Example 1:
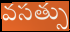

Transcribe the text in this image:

వసత్సు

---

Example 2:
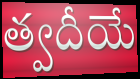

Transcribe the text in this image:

త్వదీయే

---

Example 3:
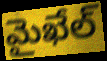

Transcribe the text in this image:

మైఖేల్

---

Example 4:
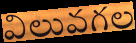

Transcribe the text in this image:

విలువగల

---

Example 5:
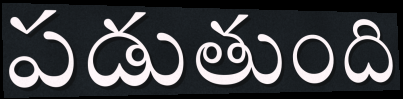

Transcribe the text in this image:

పడుతుంది